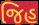
જિહ